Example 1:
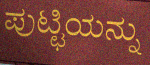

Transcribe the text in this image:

ಪುಟ್ಟಿಯನ್ನು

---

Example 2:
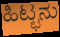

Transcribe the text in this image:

ಹಿಟ್ಟನು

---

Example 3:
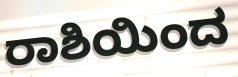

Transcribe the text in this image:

ರಾಶಿಯಿಂದ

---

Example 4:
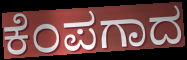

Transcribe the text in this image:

ಕೆಂಪಗಾದ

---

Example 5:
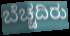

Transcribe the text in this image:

ಬೆಚ್ಚದಿರು